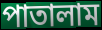
পাতালাম